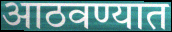
आठवण्यात